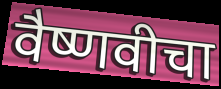
वैष्णवीचा